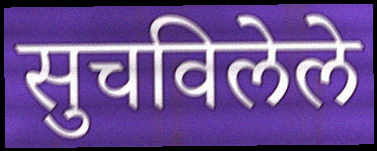
सुचविलेले